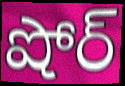
షోర్